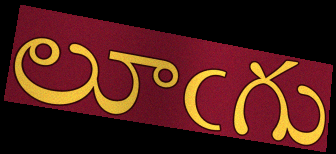
లూఁగు